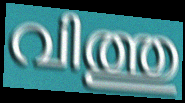
വിത്തു